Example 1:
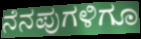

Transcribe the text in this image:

ನೆನಪುಗಳಿಗೂ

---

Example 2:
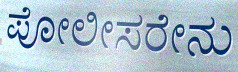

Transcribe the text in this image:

ಪೋಲೀಸರೇನು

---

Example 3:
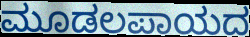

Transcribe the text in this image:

ಮೂಡಲಪಾಯದ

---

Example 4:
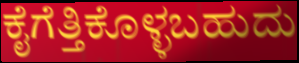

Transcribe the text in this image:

ಕೈಗೆತ್ತಿಕೊಳ್ಳಬಹುದು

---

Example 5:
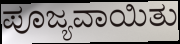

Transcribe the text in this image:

ಪೂಜ್ಯವಾಯಿತು